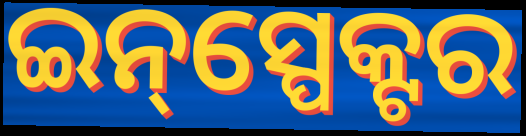
ଇନ୍‌ସ୍ପେକ୍ଟର